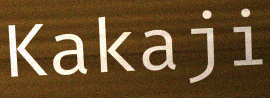
Kakaji